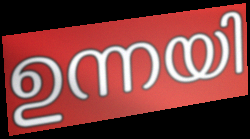
ഉന്നയി